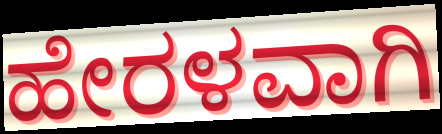
ಹೇರಳವಾಗಿ